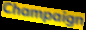
Champaign